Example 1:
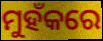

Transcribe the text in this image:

ମୁହଁକରେ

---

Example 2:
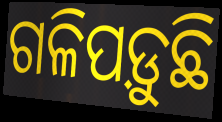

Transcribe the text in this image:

ଗଳିପଡ଼ୁଛି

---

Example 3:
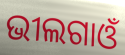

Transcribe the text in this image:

ଭୀଲଗାଓଁ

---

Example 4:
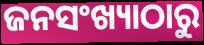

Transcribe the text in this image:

ଜନସଂଖ୍ୟାଠାରୁ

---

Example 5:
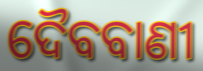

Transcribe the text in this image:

ଦୈବବାଣୀ